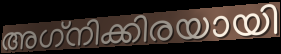
അഗ്‌നിക്കിരയായി